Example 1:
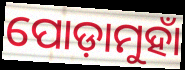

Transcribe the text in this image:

ପୋଡ଼ାମୁହାଁ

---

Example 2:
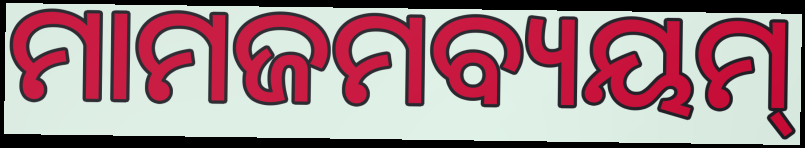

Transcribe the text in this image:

ମାମଜମବ୍ୟୟମ୍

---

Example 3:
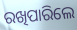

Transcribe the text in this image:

ରଖିପାରିଲେ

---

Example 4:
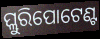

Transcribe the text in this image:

ପ୍ଲୁରିପୋଟେଣ୍ଟ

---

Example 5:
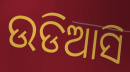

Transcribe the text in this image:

ଉଡିଆସି